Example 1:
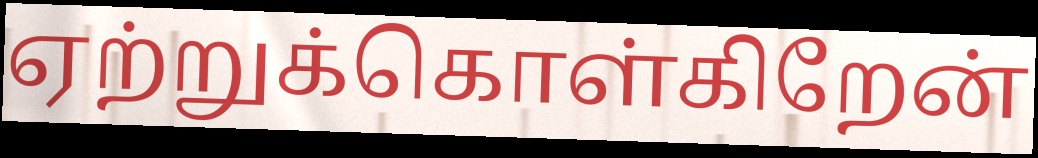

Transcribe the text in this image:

ஏற்றுக்கொள்கிறேன்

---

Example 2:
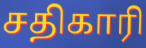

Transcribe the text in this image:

சதிகாரி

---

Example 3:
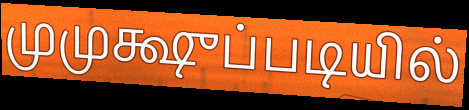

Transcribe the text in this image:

முமுக்ஷுப்படியில்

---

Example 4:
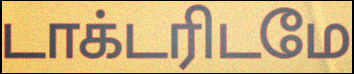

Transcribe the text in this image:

டாக்டரிடமே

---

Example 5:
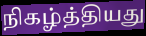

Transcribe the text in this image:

நிகழ்த்தியது